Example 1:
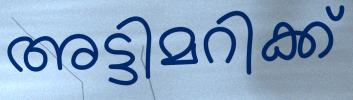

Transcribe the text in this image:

അട്ടിമറിക്ക്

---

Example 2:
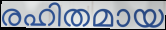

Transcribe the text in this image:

രഹിതമായ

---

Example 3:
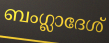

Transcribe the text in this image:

ബംഗ്ലാദേശ്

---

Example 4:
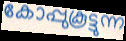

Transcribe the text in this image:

കോപ്പുകൂട്ടുന്ന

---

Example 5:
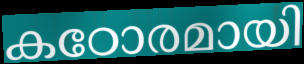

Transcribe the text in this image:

കഠോരമായി